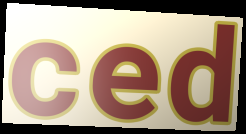
ced